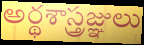
అర్థశాస్త్రజ్ఞులు